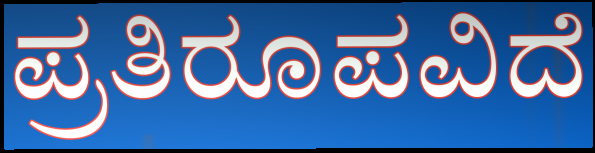
ಪ್ರತಿರೂಪವಿದೆ